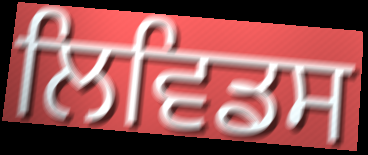
ਲਿਵਿਡਸ